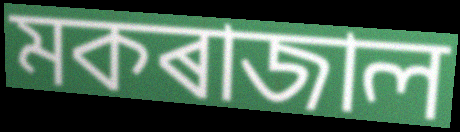
মকৰাজাল